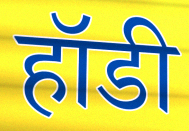
हॉडी